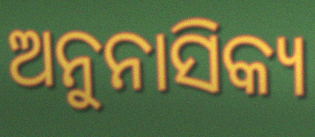
ଅନୁନାସିକ୍ୟ